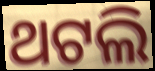
ଥଟଲି